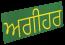
ਅਗੀਹਰ